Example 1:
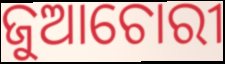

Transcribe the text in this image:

ଜୁଆଚୋରୀ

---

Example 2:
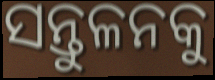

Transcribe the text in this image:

ସନ୍ତୁଳନକୁ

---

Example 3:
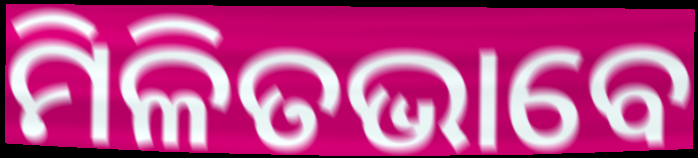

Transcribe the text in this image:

ମିଳିତଭାବେ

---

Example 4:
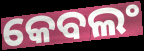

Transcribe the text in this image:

କେବଲଂ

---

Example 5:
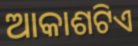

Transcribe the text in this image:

ଆକାଶଟିଏ